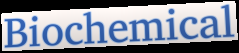
Biochemical